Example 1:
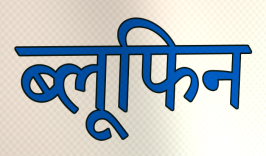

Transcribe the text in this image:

ब्लूफिन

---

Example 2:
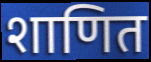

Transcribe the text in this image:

शाणित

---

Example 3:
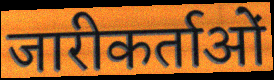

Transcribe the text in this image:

जारीकर्ताओं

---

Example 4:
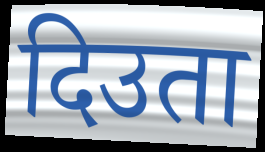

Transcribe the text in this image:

दिउता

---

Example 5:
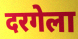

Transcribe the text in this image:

दरगेला